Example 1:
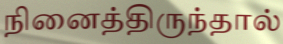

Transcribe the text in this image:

நினைத்திருந்தால்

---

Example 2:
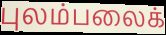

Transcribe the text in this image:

புலம்பலைக்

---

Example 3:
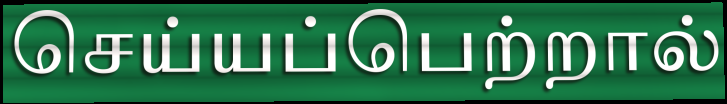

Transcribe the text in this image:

செய்யப்பெற்றால்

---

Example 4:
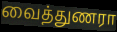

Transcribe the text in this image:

வைத்துணரா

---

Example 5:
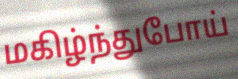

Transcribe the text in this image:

மகிழ்ந்துபோய்